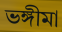
ভঙ্গীমা